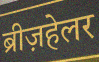
ब्रीज़हेलर